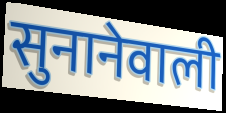
सुनानेवाली